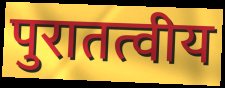
पुरातत्वीय